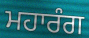
ਮਹਾਰੰਗ